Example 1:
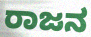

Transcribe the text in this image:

ರಾಜನ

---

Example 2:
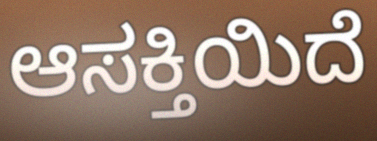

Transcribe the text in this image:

ಆಸಕ್ತಿಯಿದೆ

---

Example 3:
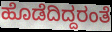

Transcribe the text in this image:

ಹೊಡೆದಿದ್ದರಂತೆ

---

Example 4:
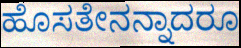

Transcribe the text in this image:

ಹೊಸತೇನನ್ನಾದರೂ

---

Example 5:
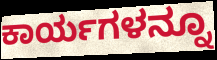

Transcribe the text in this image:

ಕಾರ್ಯಗಳನ್ನೂ